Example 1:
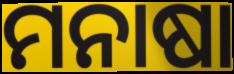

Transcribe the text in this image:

ମନାଷା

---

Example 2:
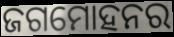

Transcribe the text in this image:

ଜଗମୋହନର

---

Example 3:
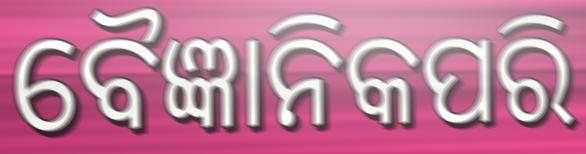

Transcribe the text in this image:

ବୈଜ୍ଞାନିକପରି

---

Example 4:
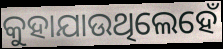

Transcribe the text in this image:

କୁହାଯାଉଥିଲେହେଁ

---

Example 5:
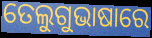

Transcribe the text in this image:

ତେଲୁଗୁଭାଷାରେ